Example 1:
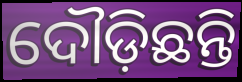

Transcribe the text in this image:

ଦୌଡ଼ିଛନ୍ତି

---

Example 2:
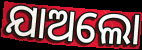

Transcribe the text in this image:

ଯାଅଲୋ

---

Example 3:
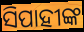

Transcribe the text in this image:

ସିପାହୀଙ୍କ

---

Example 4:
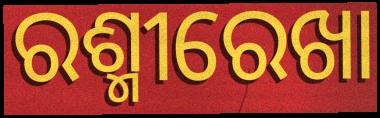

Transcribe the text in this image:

ରଶ୍ମୀରେଖା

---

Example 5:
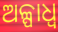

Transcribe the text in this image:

ଅଳ୍ପାଧ୍ଵ